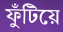
ফুঁটিয়ে